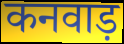
कनवाड़